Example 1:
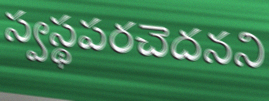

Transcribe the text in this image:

స్వస్థపరచెదనని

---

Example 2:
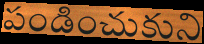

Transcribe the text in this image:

పండించుకుని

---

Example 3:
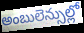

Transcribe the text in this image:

అంబులెన్సుల్లో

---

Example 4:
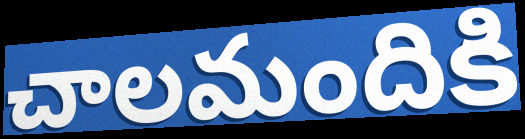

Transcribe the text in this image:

చాలమందికి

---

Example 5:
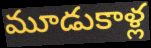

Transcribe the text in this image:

మూడుకాళ్ల